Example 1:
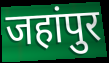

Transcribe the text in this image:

जहांपुर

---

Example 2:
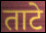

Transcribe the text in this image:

ताटे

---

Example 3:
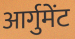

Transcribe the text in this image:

आर्गुमेंट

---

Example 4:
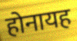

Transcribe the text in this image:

होनायह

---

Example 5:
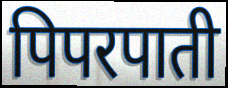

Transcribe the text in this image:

पिपरपाती